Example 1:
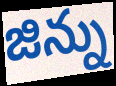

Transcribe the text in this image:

జిన్ను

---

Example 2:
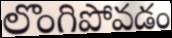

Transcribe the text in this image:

లొంగిపోవడం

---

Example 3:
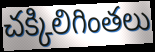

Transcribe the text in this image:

చక్కిలిగింతలు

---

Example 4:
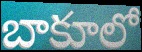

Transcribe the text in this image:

బాకూలో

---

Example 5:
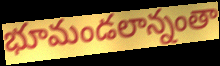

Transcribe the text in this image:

భూమండలాన్నంతా